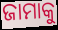
ଜାମାକୁ